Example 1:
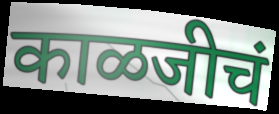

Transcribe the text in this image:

काळजीचं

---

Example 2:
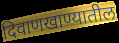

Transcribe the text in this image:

दिवाणखाण्यातील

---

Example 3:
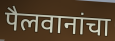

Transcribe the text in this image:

पैलवानांचा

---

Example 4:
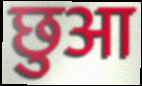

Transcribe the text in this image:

छुआ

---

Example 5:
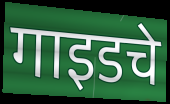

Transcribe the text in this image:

गाइडचे